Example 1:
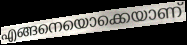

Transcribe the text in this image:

എങ്ങനെയൊക്കെയാണ്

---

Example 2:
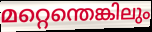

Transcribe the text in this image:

മറ്റെന്തെങ്കിലും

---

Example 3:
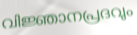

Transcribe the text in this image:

വിജ്ഞാനപ്രദവും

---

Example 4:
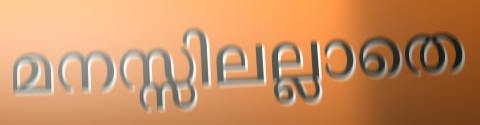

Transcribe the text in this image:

മനസ്സിലല്ലാതെ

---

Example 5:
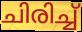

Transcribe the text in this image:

ചിരിച്ച്